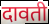
दावती